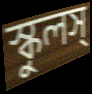
স্কুলস্